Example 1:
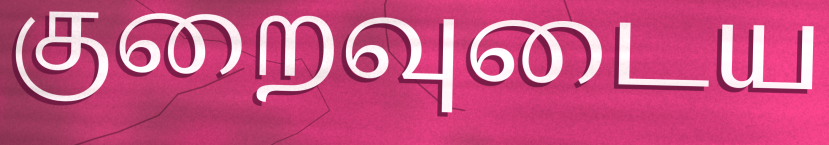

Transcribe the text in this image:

குறைவுடைய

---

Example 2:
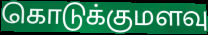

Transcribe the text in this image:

கொடுக்குமளவு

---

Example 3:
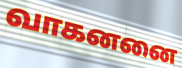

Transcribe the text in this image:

வாகனனை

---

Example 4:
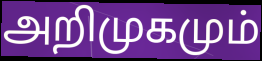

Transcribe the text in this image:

அறிமுகமும்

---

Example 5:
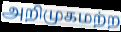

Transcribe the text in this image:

அறிமுகமற்ற